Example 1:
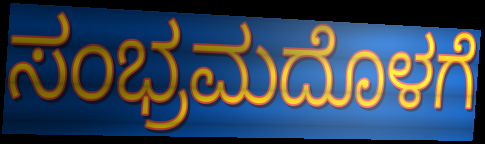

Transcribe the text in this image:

ಸಂಭ್ರಮದೊಳಗೆ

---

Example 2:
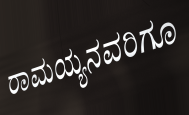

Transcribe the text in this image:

ರಾಮಯ್ಯನವರಿಗೂ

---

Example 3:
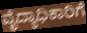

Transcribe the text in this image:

ವೈದ್ಯಾಧಿಕಾರಿಗೆ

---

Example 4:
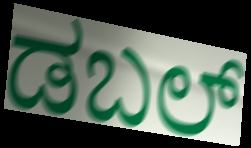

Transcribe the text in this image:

ಡಬಲ್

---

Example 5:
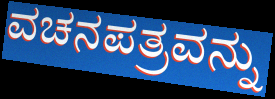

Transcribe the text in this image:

ವಚನಪತ್ರವನ್ನು